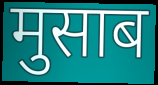
मुसाब